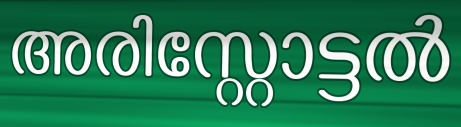
അരിസ്റ്റോട്ടൽ